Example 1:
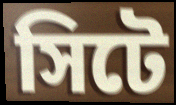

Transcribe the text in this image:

সিটে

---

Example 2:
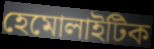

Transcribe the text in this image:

হেমোলাইটিক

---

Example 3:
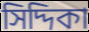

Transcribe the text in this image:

সিদ্দিকা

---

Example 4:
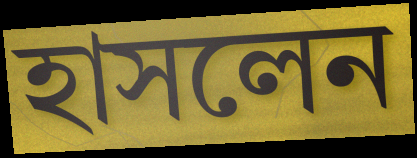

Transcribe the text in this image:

হাসলেন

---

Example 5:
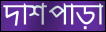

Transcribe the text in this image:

দাশপাড়া